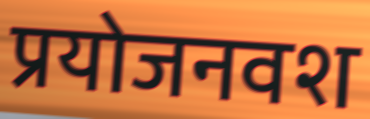
प्रयोजनवश